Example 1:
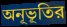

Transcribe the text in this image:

অনূভূতির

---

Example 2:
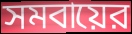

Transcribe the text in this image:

সমবায়ের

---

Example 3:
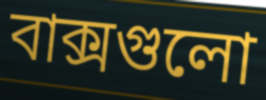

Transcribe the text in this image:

বাক্সগুলো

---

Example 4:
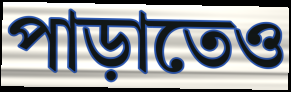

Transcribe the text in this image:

পাড়াতেও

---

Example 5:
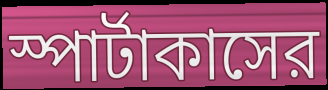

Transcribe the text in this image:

স্পার্টাকাসের